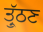
ਤ੍ਰੁੱਠਣ